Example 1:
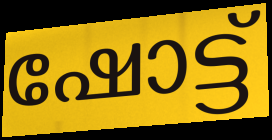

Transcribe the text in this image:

ഷോട്ട്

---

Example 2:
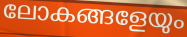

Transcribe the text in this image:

ലോകങ്ങളേയും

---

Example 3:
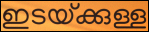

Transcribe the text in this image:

ഇടയ്‌ക്കുള്ള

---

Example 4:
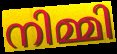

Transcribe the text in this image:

നിമ്മി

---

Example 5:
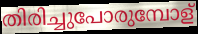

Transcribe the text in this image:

തിരിച്ചുപോരുമ്പോള്